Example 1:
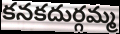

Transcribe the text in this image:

కనకదుర్గమ్మ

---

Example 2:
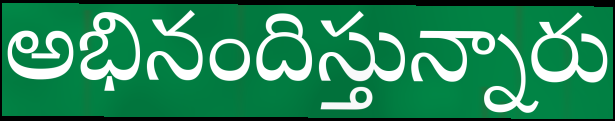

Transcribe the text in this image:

అభినందిస్తున్నారు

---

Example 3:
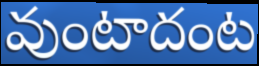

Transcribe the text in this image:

వుంటాదంట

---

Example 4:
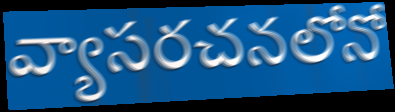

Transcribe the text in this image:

వ్యాసరచనలోనో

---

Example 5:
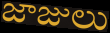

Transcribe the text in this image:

జాజులు